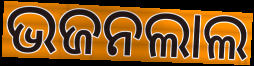
ଭଜନଲାଲ